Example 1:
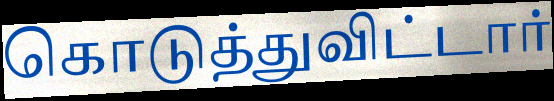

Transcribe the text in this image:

கொடுத்துவிட்டார்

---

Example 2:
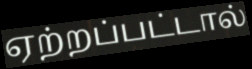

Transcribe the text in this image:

ஏற்றப்பட்டால்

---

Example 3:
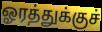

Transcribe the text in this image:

ஓரத்துக்குச்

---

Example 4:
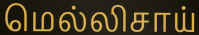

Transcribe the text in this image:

மெல்லிசாய்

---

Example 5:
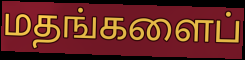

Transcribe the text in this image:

மதங்களைப்